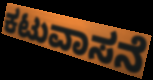
ಕಟುವಾಸನೆ